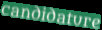
candidature